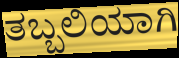
ತಬ್ಬಲಿಯಾಗಿ